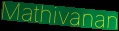
Mathivanan